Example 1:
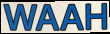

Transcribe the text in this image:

WAAH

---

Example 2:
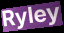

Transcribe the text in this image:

Ryley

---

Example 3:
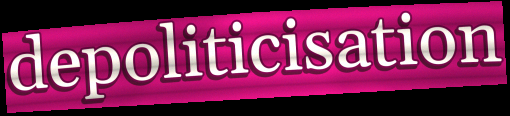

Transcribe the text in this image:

depoliticisation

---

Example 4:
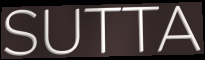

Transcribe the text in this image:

SUTTA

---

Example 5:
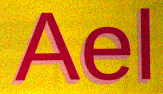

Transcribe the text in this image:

Ael